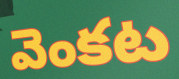
వెంకట